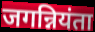
जगन्नियंता